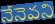
నేనెవని